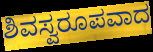
ಶಿವಸ್ವರೂಪವಾದ